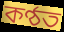
কণ্ঠত